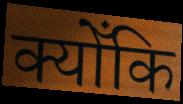
क्योँकि